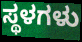
ಸ್ಥಳಗಳು